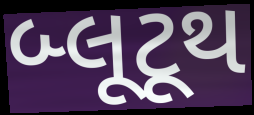
બ્લૂટૂથ